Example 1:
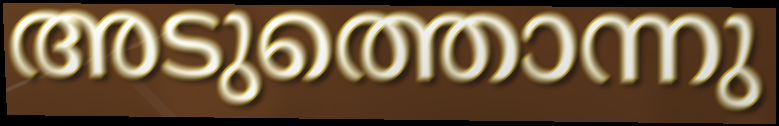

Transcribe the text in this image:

അടുത്തൊന്നു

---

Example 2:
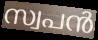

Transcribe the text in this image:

സ്വപൻ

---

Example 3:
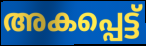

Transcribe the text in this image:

അകപ്പെട്ട്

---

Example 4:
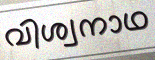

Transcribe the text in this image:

വിശ്വനാഥ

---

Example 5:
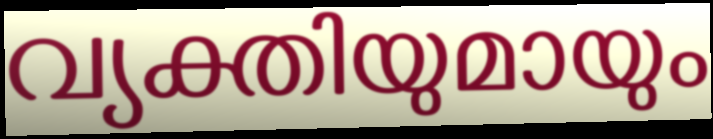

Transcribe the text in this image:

വ്യക്തിയുമായും